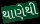
થાણેથી